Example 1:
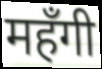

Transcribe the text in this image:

महँगी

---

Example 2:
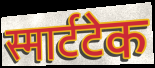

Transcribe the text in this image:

स्मार्टटेक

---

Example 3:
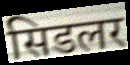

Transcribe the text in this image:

सिडलर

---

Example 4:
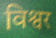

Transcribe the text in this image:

विश्वर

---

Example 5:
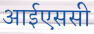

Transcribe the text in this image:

आईएससी